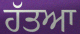
ਹੱਤਆ